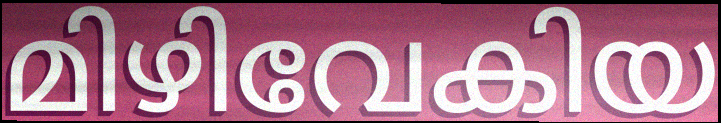
മിഴിവേകിയ